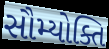
સૌમ્યોક્તિ